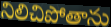
నిలిచిపోతాను